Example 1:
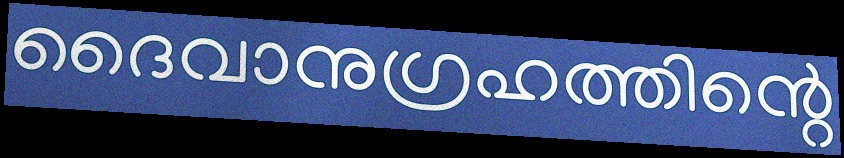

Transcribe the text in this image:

ദൈവാനുഗ്രഹത്തിന്റെ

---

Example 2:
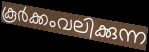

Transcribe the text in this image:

കൂർക്കംവലിക്കുന്ന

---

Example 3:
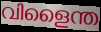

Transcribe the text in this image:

വിളൈന്ത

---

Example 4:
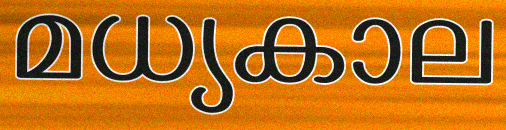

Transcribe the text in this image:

മധ്യകാല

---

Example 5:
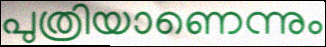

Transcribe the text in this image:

പുത്രിയാണെന്നും